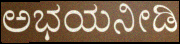
ಅಭಯನೀಡಿ